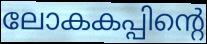
ലോകകപ്പിന്റെ